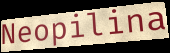
Neopilina